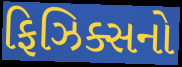
ફિઝિક્સનો